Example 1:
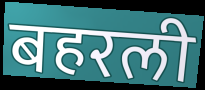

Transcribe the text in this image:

बहरली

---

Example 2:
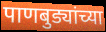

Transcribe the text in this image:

पाणबुड्यांच्या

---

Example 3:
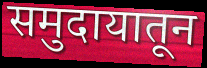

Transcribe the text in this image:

समुदायातून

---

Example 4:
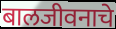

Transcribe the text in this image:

बालजीवनाचे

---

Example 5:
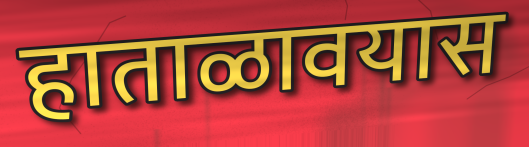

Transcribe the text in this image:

हाताळावयास